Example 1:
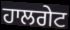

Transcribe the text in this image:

ਹਾਲਗੇਟ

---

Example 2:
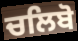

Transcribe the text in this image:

ਚਲਿਬੋ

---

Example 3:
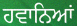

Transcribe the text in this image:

ਹਵਾਨਿਆਂ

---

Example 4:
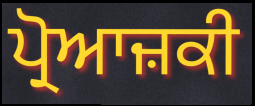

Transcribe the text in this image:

ਪ੍ਰੋਆਜ਼ਕੀ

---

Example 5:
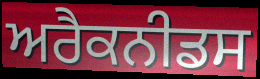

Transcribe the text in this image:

ਅਰੈਕਨੀਡਸ